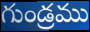
గుండ్రము